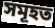
সমূহত